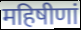
महिषीणां